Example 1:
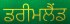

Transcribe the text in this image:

ਡਰੀਮਲੈਂਡ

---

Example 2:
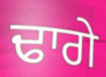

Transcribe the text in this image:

ਢਾਗੇ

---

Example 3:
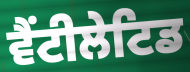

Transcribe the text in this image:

ਵੈਂਟੀਲੇਟਿਡ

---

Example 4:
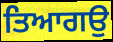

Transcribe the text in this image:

ਤਿਆਗਉ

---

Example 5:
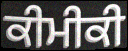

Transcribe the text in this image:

ਕੀਮੀਕੀ